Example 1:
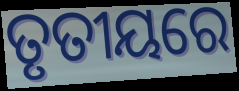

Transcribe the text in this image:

ତୃତୀୟରେ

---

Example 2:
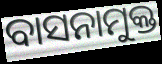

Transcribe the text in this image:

ବାସନାମୁକ୍ତ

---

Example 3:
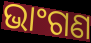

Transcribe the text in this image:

ଭାଂଗଣ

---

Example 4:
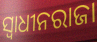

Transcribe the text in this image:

ସ୍ୱାଧୀନରାଜା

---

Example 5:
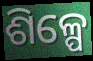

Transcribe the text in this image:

ଶିଳ୍ପେ